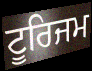
ਟੂਰਿਜਮ